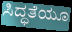
ಸಿದ್ಧತೆಯೂ